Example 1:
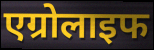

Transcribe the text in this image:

एग्रोलाइफ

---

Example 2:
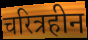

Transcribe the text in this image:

चरित्रहीन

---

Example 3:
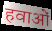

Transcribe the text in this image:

हवाओं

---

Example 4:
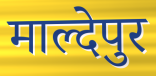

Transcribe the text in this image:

माल्देपुर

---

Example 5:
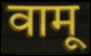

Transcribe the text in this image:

वामू